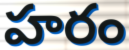
హరం